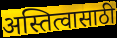
अस्तित्वासाठी